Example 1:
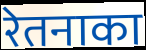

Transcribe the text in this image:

रेतनाका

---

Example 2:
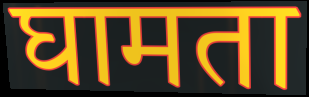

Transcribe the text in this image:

घामता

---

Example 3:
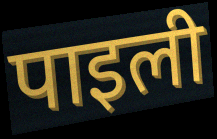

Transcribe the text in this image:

पाइली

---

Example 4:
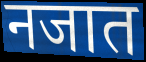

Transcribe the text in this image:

नजात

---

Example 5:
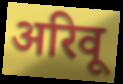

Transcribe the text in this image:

अरिवू